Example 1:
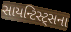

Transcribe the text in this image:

સાયન્ટિસ્ટ્સના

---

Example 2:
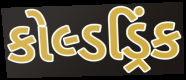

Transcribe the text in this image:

કોલ્ડડ્રિંક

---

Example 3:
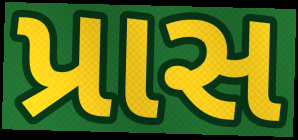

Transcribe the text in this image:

પ્રાસ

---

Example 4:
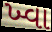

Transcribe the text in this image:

ખ્વા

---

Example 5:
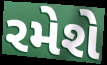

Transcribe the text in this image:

રમેશે